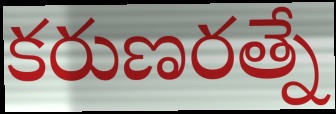
కరుణరత్నే